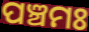
ପଞ୍ଚମଃ